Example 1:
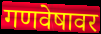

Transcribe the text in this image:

गणवेषावर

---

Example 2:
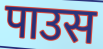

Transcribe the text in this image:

पाउस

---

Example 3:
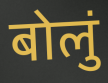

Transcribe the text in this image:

बोलुं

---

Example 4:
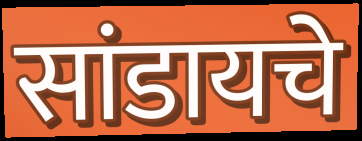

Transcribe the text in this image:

सांडायचे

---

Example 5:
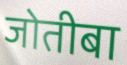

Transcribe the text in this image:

जोतीबा